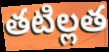
తటిల్లత